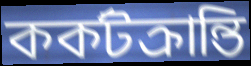
কর্কটক্রান্তি